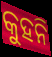
କୁହନି